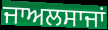
ਜਾਅਲਸਾਜਾਂ